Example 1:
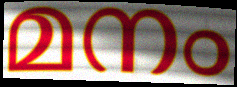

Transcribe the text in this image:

മനം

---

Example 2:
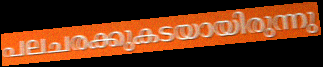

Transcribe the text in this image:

പലചരക്കുകടയായിരുന്നു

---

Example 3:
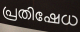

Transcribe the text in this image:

പ്രതിഷേധ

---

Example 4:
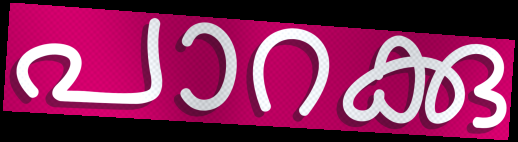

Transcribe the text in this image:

പാറക്കു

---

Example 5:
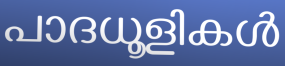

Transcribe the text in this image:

പാദധൂളികൾ